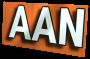
AAN